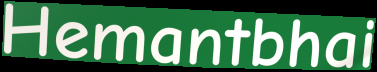
Hemantbhai